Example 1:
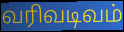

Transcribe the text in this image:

வரிவடிவம்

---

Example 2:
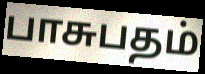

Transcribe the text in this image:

பாசுபதம்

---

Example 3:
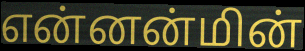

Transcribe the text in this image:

என்னன்மின்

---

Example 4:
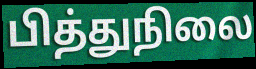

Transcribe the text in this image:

பித்துநிலை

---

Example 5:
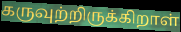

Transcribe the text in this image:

கருவுற்றிருக்கிறாள்